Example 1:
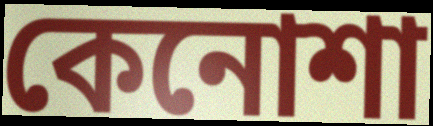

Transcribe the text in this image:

কেনোশা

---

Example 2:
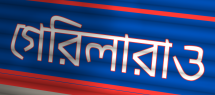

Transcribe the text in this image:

গেরিলারাও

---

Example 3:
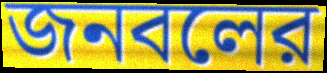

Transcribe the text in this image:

জনবলের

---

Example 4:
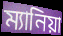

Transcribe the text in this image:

ম্যানিয়া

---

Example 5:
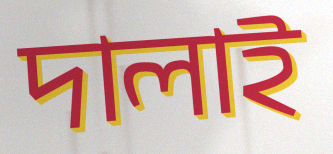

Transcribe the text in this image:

দালাই